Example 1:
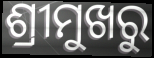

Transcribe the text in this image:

ଶ୍ରୀମୁଖରୁ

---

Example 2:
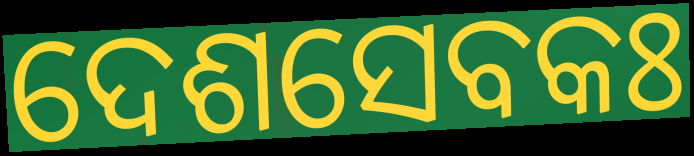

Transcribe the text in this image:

ଦେଶସେବକଃ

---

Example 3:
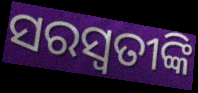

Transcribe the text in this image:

ସରସ୍ୱତୀଙ୍କି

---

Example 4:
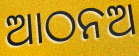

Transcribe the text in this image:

ଆଠନଅ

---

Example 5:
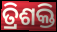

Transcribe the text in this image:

ତ୍ରିଶକ୍ତି